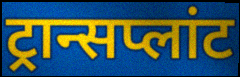
ट्रान्सप्लांट